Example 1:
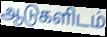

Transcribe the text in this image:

ஆடுகளிடம்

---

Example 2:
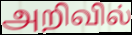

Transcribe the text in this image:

அறிவில்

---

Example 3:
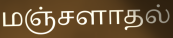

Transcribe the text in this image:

மஞ்சளாதல்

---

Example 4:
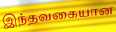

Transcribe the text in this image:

இந்தவகையான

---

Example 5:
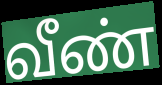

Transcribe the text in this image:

வீண்